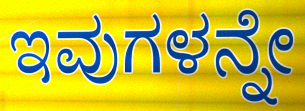
ಇವುಗಳನ್ನೇ